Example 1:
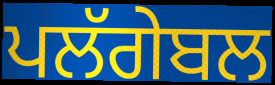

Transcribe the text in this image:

ਪਲੱਗੇਬਲ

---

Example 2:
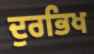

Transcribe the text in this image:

ਦੁਰਭਿਖ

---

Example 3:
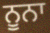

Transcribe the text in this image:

ਨੂਨਾ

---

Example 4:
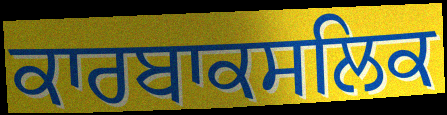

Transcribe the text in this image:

ਕਾਰਬਾਕਸਲਿਕ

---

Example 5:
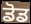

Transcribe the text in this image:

ਡੋਡ